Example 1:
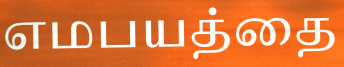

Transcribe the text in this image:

எமபயத்தை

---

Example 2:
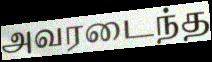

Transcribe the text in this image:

அவரடைந்த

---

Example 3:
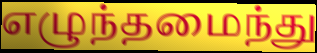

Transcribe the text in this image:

எழுந்தமைந்து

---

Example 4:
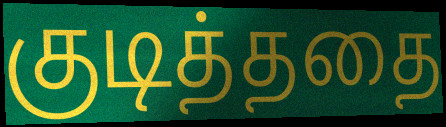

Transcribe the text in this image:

குடித்ததை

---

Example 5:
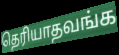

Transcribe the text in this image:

தெரியாதவங்க